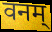
वनम्